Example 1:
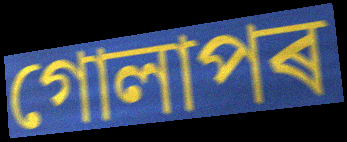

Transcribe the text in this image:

গোলাপৰ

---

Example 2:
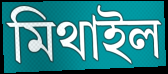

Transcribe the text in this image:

মিথাইল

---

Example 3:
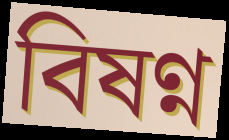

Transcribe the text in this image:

বিষণ্ন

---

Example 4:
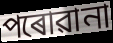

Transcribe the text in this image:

পৰোৱানা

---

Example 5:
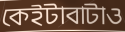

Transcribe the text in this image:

কেইটাবাটাও